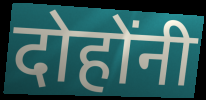
दोहोंनी